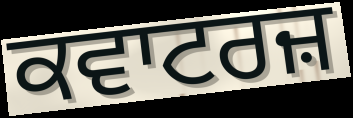
ਕਵਾਟਰਜ਼